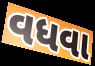
વધવા